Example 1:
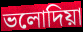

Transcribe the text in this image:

ভলোদিয়া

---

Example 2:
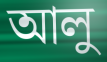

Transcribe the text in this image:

আলু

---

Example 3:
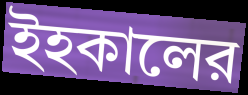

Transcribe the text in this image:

ইহকালের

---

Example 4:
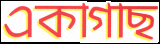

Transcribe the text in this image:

একাগাছ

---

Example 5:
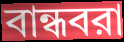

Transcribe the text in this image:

বান্ধবরা